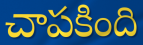
చాపకింది